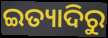
ଇତ୍ୟାଦିରୁ